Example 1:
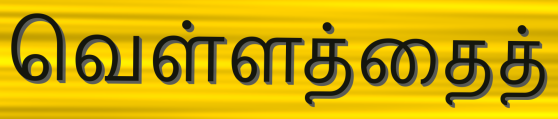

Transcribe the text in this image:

வெள்ளத்தைத்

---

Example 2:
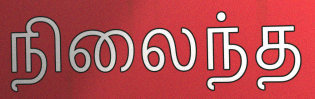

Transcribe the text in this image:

நிலைந்த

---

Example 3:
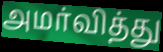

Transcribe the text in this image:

அமர்வித்து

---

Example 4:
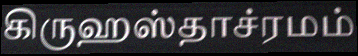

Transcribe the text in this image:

கிருஹஸ்தாச்ரமம்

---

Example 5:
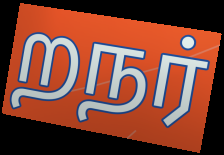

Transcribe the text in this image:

றநர்